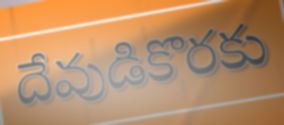
దేవుడికొరకు